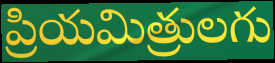
ప్రియమిత్రులగు